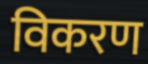
विकरण